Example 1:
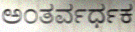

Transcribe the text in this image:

ಅಂತರ್ವರ್ಧಕ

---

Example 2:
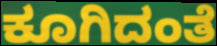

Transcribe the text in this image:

ಕೂಗಿದಂತೆ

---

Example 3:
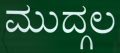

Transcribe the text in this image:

ಮುದ್ಗಲ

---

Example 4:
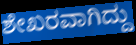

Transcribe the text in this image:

ಶೇಖರವಾಗಿದ್ದು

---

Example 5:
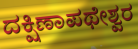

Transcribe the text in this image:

ದಕ್ಷಿಣಾಪಥೇಶ್ವರ